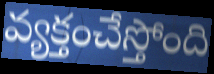
వ్యక్తంచేస్తోంది